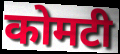
कोमटी